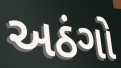
અઠંગો